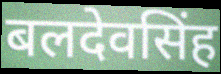
बलदेवसिंह